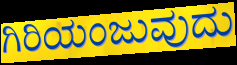
ಗಿರಿಯಂಜುವುದು